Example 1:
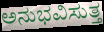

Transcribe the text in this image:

ಅನುಭವಿಸುತ್ತ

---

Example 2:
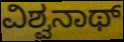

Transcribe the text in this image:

ವಿಶ್ವನಾಥ್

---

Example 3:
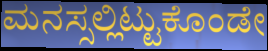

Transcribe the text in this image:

ಮನಸ್ಸಲ್ಲಿಟ್ಟುಕೊಂಡೇ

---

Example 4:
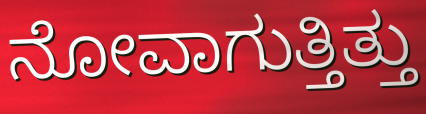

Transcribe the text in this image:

ನೋವಾಗುತ್ತಿತ್ತು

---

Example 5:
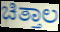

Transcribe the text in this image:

ಚಿತ್ತಾಲ